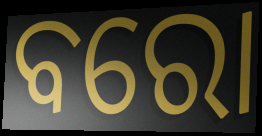
ବରୋ